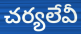
చర్యలేవీ